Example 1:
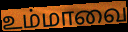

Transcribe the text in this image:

உம்மாவை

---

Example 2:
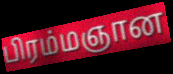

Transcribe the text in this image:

பிரம்மஞான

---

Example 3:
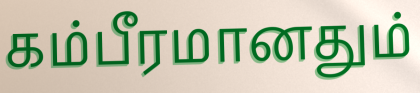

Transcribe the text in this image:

கம்பீரமானதும்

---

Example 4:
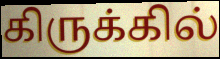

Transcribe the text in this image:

கிருக்கில்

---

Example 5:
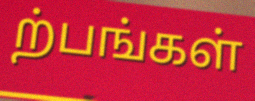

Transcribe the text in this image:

ற்பங்கள்